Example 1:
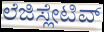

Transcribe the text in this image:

ಲೆಜಿಸ್ಲೇಟಿವ್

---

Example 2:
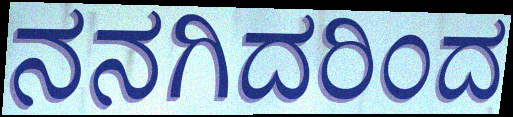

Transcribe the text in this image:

ನನಗಿದರಿಂದ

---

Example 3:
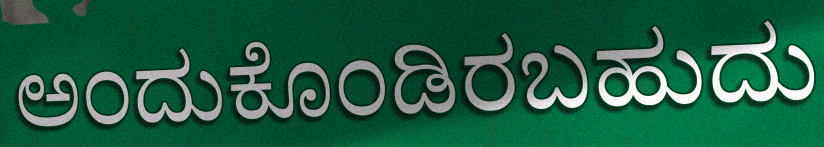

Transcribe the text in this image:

ಅಂದುಕೊಂಡಿರಬಹುದು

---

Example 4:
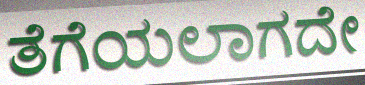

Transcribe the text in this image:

ತೆಗೆಯಲಾಗದೇ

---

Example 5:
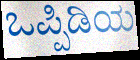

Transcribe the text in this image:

ಒಪ್ಪಿಡಿಯ